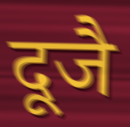
दूजै